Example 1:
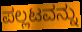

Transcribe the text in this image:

ಪಲ್ಲಟವನ್ನು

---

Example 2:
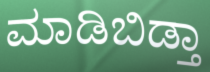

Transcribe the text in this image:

ಮಾಡಿಬಿಡ್ತಾ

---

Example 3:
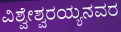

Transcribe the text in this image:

ವಿಶ್ವೇಶ್ವರಯ್ಯನವರ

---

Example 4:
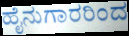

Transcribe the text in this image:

ಹೈನುಗಾರರಿಂದ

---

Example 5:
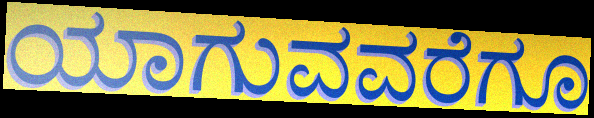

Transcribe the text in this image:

ಯಾಗುವವರೆಗೂ